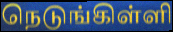
நெடுங்கிள்ளி